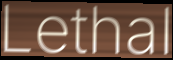
Lethal